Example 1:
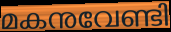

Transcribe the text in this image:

മകനുവേണ്ടി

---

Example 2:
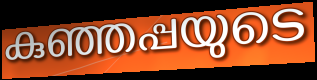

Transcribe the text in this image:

കുഞ്ഞപ്പയുടെ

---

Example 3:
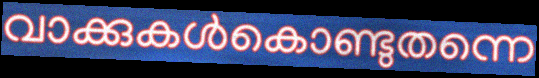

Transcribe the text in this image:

വാക്കുകൾകൊണ്ടുതന്നെ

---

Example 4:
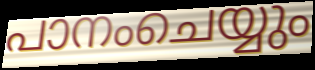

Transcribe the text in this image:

പാനംചെയ്യും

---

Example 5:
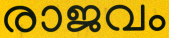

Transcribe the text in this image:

രാജവം